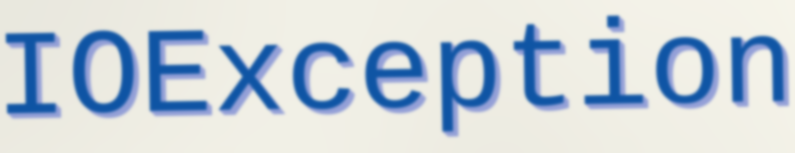
IOException